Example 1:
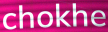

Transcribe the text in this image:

chokhe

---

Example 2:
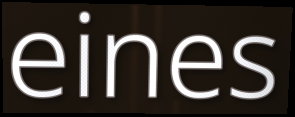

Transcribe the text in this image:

eines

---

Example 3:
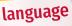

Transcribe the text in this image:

language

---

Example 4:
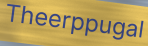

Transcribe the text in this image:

Theerppugal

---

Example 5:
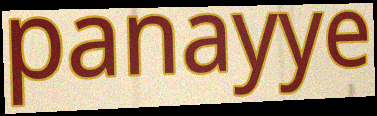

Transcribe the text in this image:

panayye